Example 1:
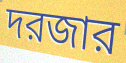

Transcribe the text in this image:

দরজার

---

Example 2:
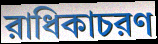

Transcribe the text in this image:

রাধিকাচরণ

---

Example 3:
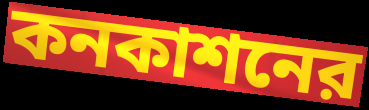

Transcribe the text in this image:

কনকাশনের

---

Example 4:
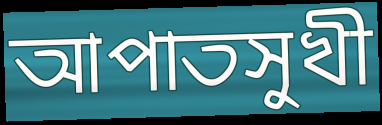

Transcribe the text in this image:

আপাতসুখী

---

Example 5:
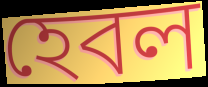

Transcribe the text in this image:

হেবল